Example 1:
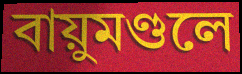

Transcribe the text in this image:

বায়ুমণ্ডলে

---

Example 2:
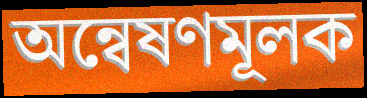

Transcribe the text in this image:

অন্বেষণমূলক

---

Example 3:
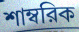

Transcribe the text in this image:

শাম্বরিক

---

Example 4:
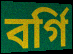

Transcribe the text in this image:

বর্গি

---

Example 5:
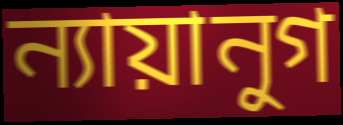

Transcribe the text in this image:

ন্যায়ানুগ